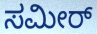
ಸಮೀರ್